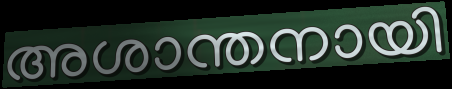
അശാന്തനായി